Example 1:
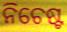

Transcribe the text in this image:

ନିଚେଷ୍ଟ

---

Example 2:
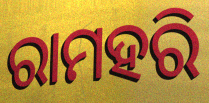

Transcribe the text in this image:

ରାମହରି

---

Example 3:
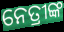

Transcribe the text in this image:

ନେତ୍ରୀଙ୍କ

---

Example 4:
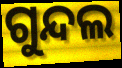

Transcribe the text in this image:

ଗୁନ୍ଦଲ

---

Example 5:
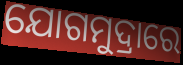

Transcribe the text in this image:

ଯୋଗମୁଦ୍ରାରେ